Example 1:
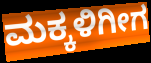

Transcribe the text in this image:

ಮಕ್ಕಳಿಗೀಗ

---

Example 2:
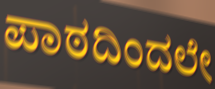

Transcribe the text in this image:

ಪಾಠದಿಂದಲೇ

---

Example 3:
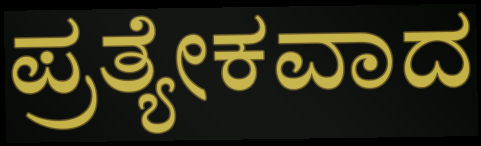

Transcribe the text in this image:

ಪ್ರತ್ಯೇಕವಾದ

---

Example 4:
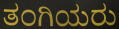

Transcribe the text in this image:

ತಂಗಿಯರು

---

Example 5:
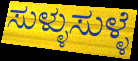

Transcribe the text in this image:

ಸುಳ್ಳುಸುಳ್ಳೆ